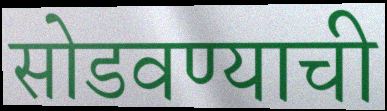
सोडवण्याची